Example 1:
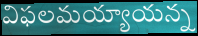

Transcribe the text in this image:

విఫలమయ్యాయన్న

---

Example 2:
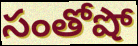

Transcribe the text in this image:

సంతోషో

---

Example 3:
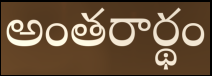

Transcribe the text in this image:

అంతరార్థం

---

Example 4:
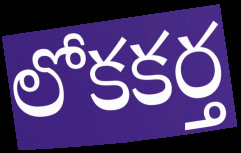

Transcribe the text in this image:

లోకకర్త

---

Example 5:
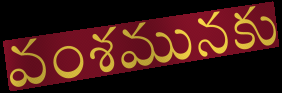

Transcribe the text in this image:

వంశమునకు